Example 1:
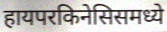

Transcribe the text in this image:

हायपरकिनेसिसमध्ये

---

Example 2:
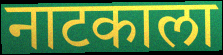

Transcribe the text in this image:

नाटकाला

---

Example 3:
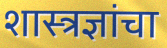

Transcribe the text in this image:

शास्त्रज्ञांचा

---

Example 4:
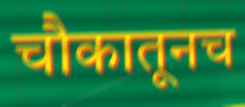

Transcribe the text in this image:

चौकातूनच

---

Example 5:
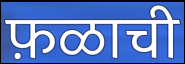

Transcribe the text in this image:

फ़ळाची